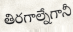
తిరగాల్నేగానీ